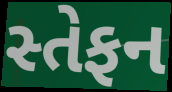
સ્તેફન